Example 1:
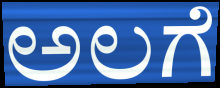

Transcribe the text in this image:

ಅಲಗೆ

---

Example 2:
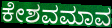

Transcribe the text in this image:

ಕೇಶವಮಾವ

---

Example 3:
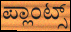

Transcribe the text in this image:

ಪ್ಲಾಂಟ್ಸ್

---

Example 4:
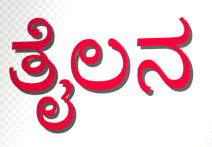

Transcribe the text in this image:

ತೈಲನ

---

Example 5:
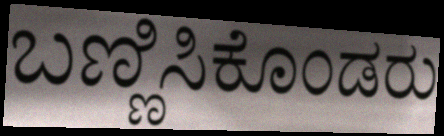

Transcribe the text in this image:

ಬಣ್ಣಿಸಿಕೊಂಡರು